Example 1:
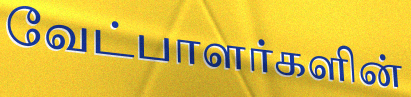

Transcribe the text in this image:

வேட்பாளர்களின்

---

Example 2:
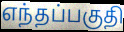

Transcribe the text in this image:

எந்தப்பகுதி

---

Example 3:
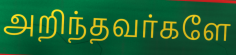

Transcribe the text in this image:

அறிந்தவர்களே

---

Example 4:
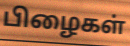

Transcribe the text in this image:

பிழைகள்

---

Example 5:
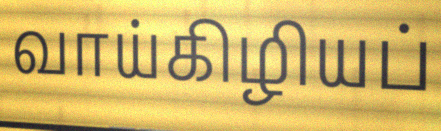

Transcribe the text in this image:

வாய்கிழியப்